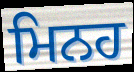
ਮਿਨਹ